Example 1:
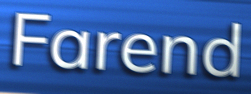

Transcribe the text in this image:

Farend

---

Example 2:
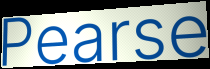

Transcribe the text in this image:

Pearse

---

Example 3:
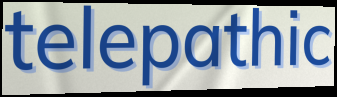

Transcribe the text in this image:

telepathic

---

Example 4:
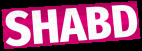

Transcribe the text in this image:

SHABD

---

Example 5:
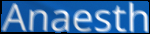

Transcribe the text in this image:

Anaesth